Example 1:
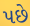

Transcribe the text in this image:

પછે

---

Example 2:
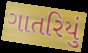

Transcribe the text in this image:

ગાતરિયું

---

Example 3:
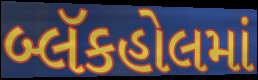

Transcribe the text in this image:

બ્લૅકહોલમાં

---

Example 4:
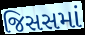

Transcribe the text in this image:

જિસસમાં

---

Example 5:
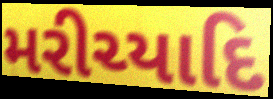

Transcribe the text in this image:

મરીચ્યાદિ